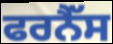
ਫਰਨੈੱਸ